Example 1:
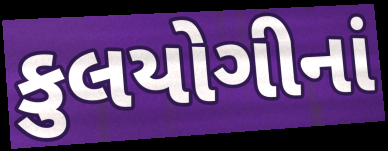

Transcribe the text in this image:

કુલયોગીનાં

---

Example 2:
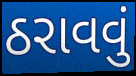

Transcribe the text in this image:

ઠરાવવું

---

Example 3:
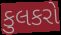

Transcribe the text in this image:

કુલકરો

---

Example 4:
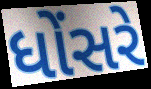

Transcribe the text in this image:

ધોંસરે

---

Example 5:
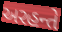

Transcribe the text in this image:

અરહન્તે